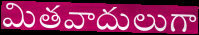
మితవాదులుగా